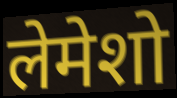
लेमेशो